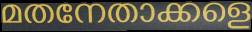
മതനേതാക്കളെ